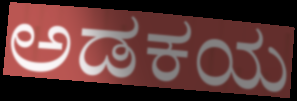
ಅಡಕಯ